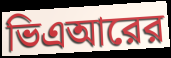
ভিএআরের